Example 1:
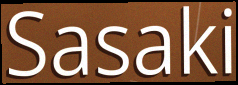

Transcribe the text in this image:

Sasaki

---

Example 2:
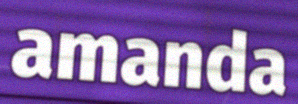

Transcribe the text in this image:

amanda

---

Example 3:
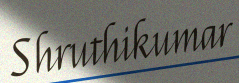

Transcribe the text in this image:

Shruthikumar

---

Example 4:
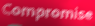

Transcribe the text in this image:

Compromise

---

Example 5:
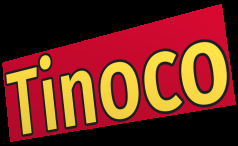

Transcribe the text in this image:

Tinoco